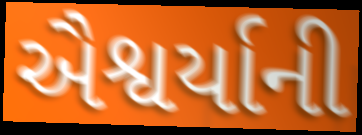
ઐશ્વર્યાની